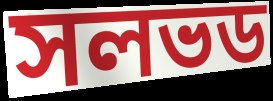
সলভড